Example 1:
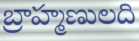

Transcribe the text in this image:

బ్రాహ్మణులది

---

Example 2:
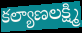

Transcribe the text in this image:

కల్యాణలక్ష్మి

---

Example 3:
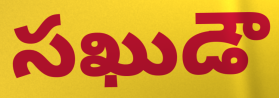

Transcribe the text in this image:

సఖుడౌ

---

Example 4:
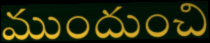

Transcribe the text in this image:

ముందుంచి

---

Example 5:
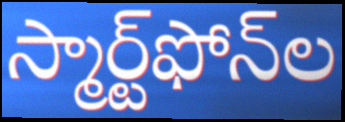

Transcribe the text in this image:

స్మార్ట్‌ఫోన్‌ల